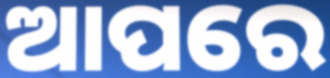
ଆପରେ